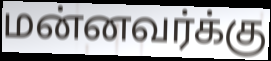
மன்னவர்க்கு